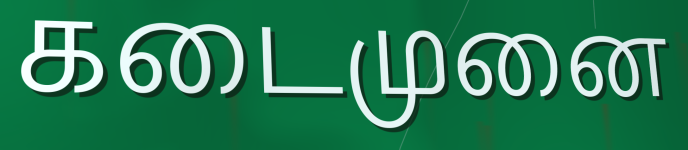
கடைமுனை